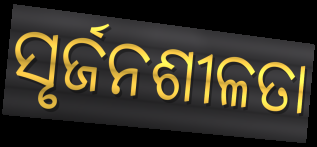
ସୃର୍ଜନଶୀଳତା